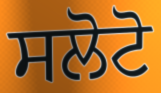
ਸਲੋਟੋ